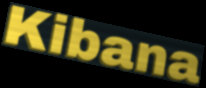
Kibana